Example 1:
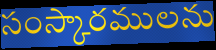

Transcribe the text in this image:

సంస్కారములను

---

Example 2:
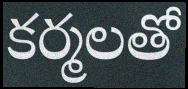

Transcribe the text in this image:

కర్మలతో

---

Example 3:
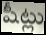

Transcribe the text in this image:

షీట్లు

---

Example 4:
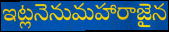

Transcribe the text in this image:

ఇట్లనెనుమహారాజైన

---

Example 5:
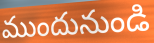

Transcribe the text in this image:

ముందునుండి